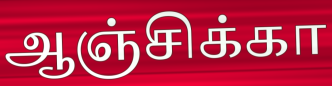
ஆஞ்சிக்கா